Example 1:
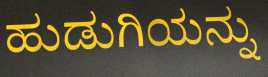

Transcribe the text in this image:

ಹುಡುಗಿಯನ್ನು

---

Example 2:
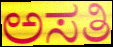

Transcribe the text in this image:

ಅಸತಿ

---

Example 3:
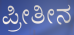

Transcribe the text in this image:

ಪ್ರೀತೀನ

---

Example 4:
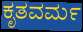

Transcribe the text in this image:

ಕೃತವರ್ಮ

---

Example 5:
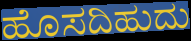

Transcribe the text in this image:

ಹೊಸದಿಹುದು